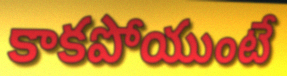
కాకపోయుంటే